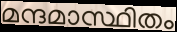
മന്ദമാസ്ഥിതം